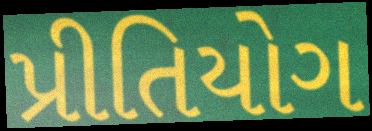
પ્રીતિયોગ